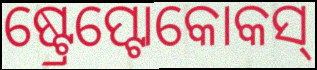
ଷ୍ଟ୍ରେପ୍ଟୋକୋକସ୍